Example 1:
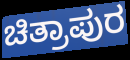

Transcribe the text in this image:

ಚಿತ್ರಾಪುರ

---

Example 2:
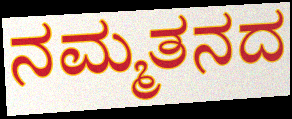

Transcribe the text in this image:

ನಮ್ಮತನದ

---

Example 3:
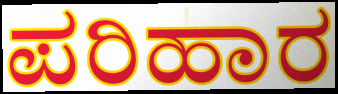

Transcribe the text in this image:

ಪರಿಹಾರ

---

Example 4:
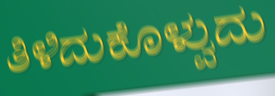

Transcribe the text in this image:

ತಿಳಿದುಕೊಳ್ವುದು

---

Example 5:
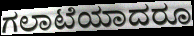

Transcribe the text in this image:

ಗಲಾಟೆಯಾದರೂ